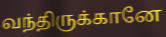
வந்திருக்கானே